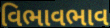
વિભાવભાવ